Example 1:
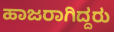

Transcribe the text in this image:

ಹಾಜರಾಗಿದ್ದರು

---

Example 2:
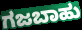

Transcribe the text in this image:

ಗಜಬಾಹು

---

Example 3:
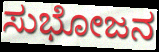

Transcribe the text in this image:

ಸುಭೋಜನ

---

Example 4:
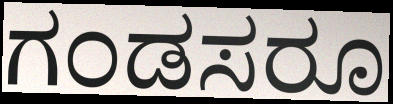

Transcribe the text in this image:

ಗಂಡಸರೂ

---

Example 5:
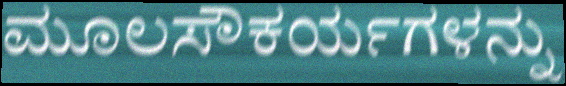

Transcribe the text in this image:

ಮೂಲಸೌಕರ್ಯಗಳನ್ನು